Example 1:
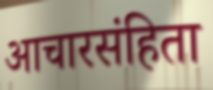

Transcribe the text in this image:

आचारसंहिता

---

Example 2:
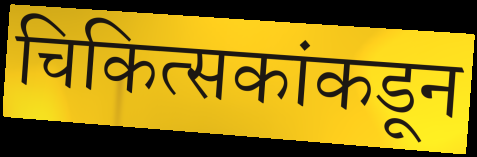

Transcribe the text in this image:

चिकित्सकांकडून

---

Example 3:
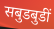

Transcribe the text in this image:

सबुडबुडीं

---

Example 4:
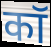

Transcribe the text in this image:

कॉ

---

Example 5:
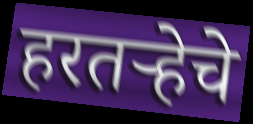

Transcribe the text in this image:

हरतऱ्हेचे